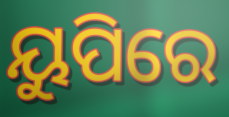
ୟୁପିରେ